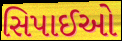
સિપાઈઓ